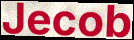
Jecob